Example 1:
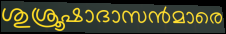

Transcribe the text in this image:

ശുശ്രൂഷാദാസൻമാരെ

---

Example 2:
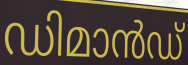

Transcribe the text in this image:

ഡിമാൻഡ്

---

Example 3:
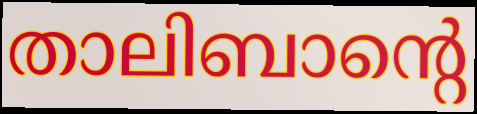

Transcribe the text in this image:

താലിബാന്റെ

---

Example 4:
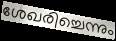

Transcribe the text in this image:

ശേഖരിച്ചെന്നും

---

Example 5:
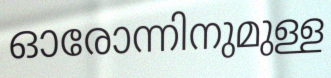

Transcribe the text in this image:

ഓരോന്നിനുമുള്ള